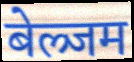
बेल्जम